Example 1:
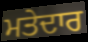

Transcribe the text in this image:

ਮਤੇਦਾਰ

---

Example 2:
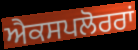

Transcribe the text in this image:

ਐਕਸਪਲੋਰਰਾਂ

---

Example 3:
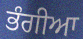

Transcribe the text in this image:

ਭੰਗੀਆ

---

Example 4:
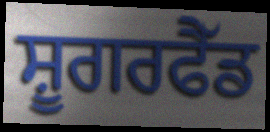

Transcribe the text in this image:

ਸ਼ੂਗਰਫੈੱਡ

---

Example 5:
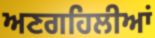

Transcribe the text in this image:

ਅਣਗਹਿਲੀਆਂ